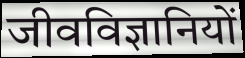
जीवविज्ञानियों